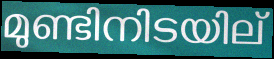
മുണ്ടിനിടയില്